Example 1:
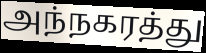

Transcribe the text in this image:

அந்நகரத்து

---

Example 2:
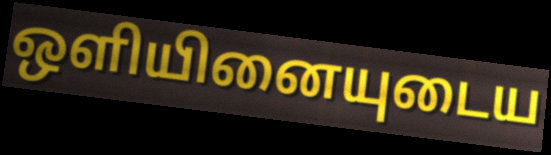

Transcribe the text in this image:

ஒளியினையுடைய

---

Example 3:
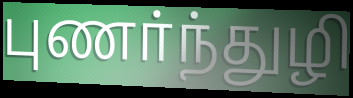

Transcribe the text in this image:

புணர்ந்துழி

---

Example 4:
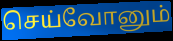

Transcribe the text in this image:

செய்வோனும்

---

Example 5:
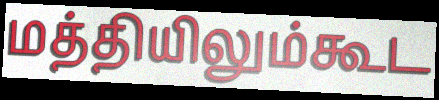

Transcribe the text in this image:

மத்தியிலும்கூட